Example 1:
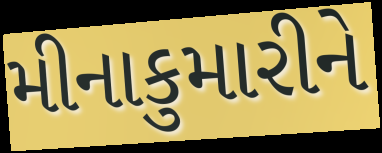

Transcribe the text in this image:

મીનાકુમારીને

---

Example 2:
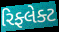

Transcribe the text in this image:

રિફ્લેક્ટ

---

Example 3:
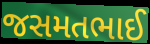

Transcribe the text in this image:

જસમતભાઈ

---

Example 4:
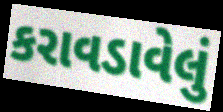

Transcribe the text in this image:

કરાવડાવેલું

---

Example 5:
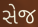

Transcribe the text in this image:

સેજ